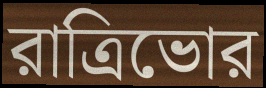
রাত্রিভোর